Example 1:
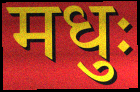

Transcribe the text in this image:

मधुः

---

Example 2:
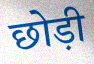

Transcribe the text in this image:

छोड़ी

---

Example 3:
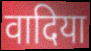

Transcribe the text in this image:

वादिया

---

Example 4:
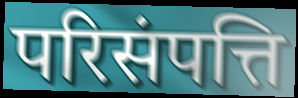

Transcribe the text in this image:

परिसंपत्ति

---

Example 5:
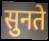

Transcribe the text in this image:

सुनते